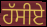
ਹੱਸੀਏ